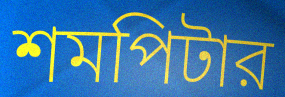
শমপিটার